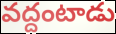
వద్దంటాడు